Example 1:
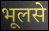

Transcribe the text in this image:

भूलसे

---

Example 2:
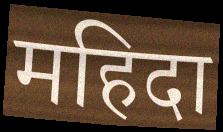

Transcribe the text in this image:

महिदा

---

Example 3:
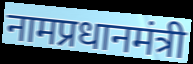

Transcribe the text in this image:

नामप्रधानमंत्री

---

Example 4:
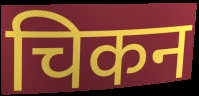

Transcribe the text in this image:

चिकन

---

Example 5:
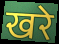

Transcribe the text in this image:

खरे